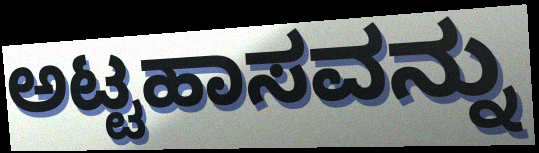
ಅಟ್ಟಹಾಸವನ್ನು